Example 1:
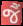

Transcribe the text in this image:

જૈં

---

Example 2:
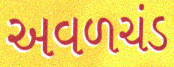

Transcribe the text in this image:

અવળચંડ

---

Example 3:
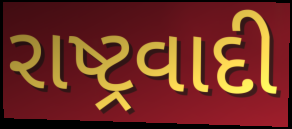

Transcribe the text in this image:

રાષ્ટ્રવાદી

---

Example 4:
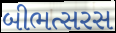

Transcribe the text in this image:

બીભત્સરસ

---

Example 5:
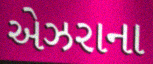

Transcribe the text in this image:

એઝરાના